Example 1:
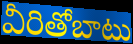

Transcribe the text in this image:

వీరితోబాటు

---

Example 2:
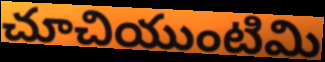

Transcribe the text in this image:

చూచియుంటిమి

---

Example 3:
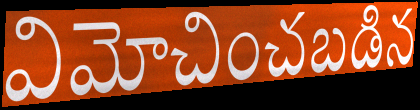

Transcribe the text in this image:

విమోచించబడిన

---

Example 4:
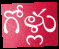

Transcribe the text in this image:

గోళ్లు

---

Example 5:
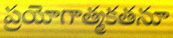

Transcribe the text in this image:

ప్రయోగాత్మకతనూ